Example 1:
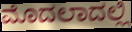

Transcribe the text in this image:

ಮೊದಲಾದಲ್ಲಿ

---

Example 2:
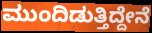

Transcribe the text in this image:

ಮುಂದಿಡುತ್ತಿದ್ದೇನೆ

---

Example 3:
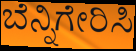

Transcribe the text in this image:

ಬೆನ್ನಿಗೇರಿಸಿ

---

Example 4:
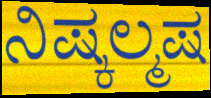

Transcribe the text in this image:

ನಿಷ್ಕಲ್ಮಷ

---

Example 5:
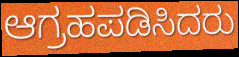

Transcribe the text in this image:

ಆಗ್ರಹಪಡಿಸಿದರು